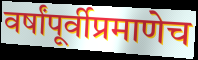
वर्षांपूर्वीप्रमाणेच